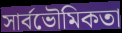
সার্বভৌমিকতা